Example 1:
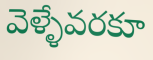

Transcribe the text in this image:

వెళ్ళేవరకూ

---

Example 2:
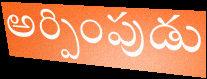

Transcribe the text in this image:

అర్పింపుడు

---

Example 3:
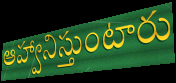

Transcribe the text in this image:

ఆహ్వానిస్తుంటారు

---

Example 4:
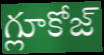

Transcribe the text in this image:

గ్లూకోజ్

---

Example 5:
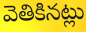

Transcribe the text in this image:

వెతికినట్లు